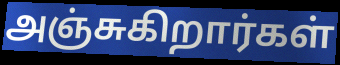
அஞ்சுகிறார்கள்